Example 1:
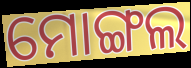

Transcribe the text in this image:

ମୋଙ୍ଗଲ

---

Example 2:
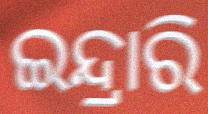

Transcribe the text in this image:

ଇନ୍ଦ୍ରାରି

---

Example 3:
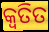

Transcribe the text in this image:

କ୍ୱତିତ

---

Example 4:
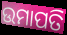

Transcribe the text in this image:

ଉମାପତି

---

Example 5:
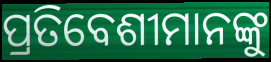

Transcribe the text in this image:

ପ୍ରତିବେଶୀମାନଙ୍କୁ